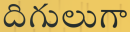
దిగులుగా